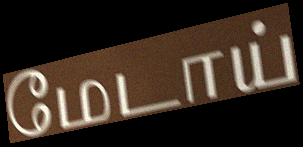
மேடாய்